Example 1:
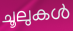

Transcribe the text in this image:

ചൂലുകൾ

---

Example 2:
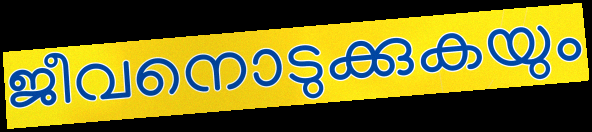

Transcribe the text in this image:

ജീവനൊടുക്കുകയും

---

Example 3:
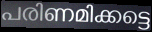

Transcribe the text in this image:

പരിണമിക്കട്ടെ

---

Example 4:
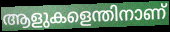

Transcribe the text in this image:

ആളുകളെന്തിനാണ്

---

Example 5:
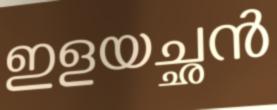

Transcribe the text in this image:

ഇളയച്ഛൻ